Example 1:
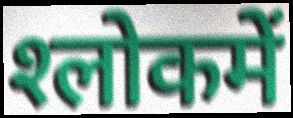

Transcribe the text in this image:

श्‍लोकमें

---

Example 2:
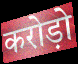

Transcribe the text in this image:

करोड़ो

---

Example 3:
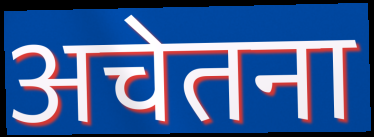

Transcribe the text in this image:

अचेतना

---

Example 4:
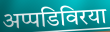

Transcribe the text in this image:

अप्पडिविरया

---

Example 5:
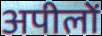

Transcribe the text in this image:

अपीलों